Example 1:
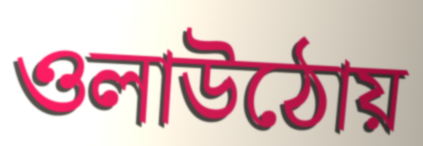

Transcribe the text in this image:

ওলাউঠোয়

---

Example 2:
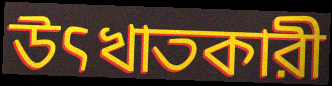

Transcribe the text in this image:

উৎখাতকারী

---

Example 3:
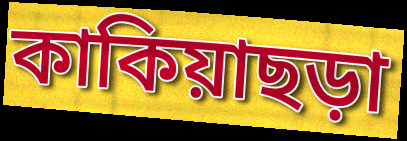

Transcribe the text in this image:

কাকিয়াছড়া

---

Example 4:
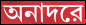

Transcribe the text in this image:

অনাদরে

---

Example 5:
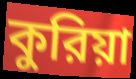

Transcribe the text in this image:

কুরিয়া